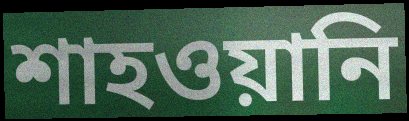
শাহওয়ানি